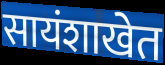
सायंशाखेत